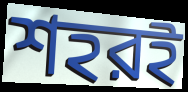
শহরই